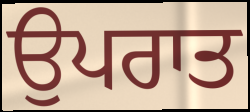
ਉਪਰਾਤ